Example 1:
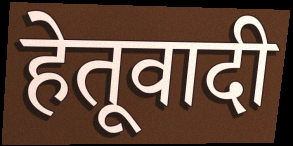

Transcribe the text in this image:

हेतूवादी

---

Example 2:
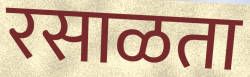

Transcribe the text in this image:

रसाळता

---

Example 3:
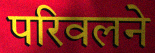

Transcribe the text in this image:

परिवलने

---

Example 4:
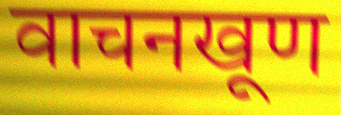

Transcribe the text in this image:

वाचनखूण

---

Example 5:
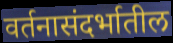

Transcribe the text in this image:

वर्तनासंदर्भातील